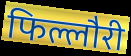
फिल्लौरी